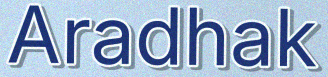
Aradhak